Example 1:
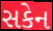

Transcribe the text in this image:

સકેન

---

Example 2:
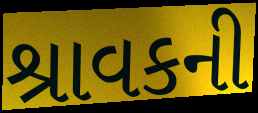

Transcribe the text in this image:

શ્રાવકની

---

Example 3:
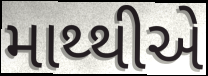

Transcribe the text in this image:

માથ્થીએ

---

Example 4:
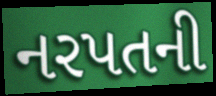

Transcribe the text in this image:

નરપતની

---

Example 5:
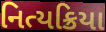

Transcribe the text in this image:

નિત્યક્રિયા